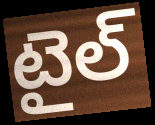
టైల్